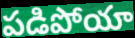
పడిపోయా